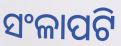
ସଂଳାପଟି